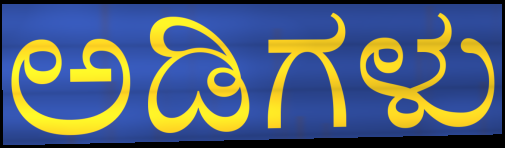
ಅಡಿಗಳು